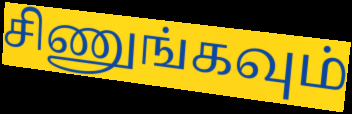
சிணுங்கவும்